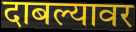
दाबल्यावर